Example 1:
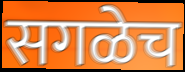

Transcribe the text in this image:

सगळेच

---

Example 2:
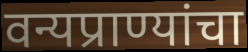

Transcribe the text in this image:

वन्यप्राण्यांचा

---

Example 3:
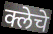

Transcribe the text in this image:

क्लेचे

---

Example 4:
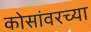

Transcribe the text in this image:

कोसांवरच्या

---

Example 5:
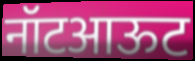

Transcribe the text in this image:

नॉटआऊट